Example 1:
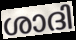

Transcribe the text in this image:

ശാദി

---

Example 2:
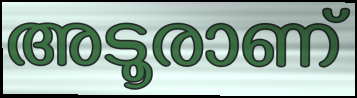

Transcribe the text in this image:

അടൂരാണ്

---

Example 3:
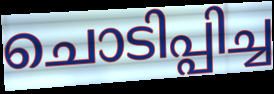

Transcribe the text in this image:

ചൊടിപ്പിച്ച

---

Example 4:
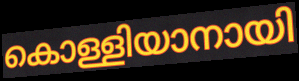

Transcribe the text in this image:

കൊള്ളിയാനായി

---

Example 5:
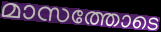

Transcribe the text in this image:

മാസത്തോടെ